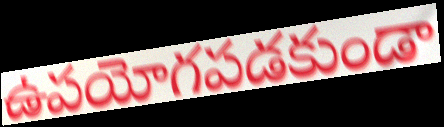
ఉపయోగపడకుండా